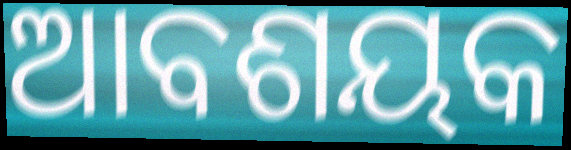
ଆବଶୟକ